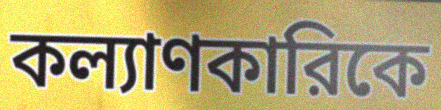
কল্যাণকারিকে